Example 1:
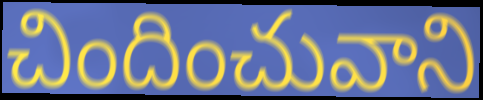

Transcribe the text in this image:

చిందించువాని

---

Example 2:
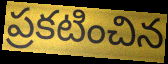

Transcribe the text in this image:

ప్రకటించిన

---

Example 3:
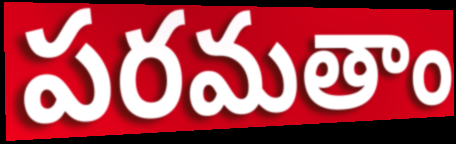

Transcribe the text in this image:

పరమతాం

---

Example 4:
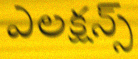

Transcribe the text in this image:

ఎలక్షన్స్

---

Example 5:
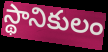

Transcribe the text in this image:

స్థానికులం